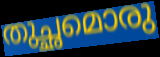
തുച്ഛമൊരു